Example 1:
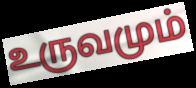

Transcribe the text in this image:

உருவமும்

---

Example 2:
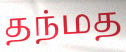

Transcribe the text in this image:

தந்மத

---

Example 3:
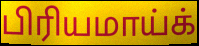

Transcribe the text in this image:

பிரியமாய்க்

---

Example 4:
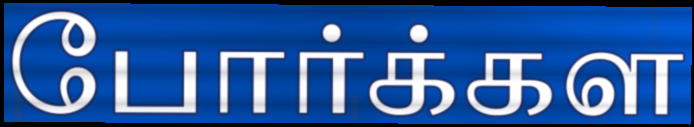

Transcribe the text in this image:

போர்க்கள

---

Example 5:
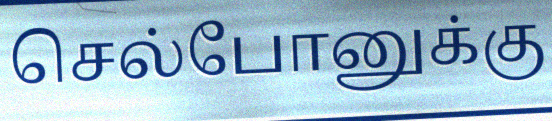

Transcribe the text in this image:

செல்போனுக்கு